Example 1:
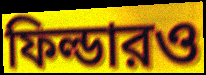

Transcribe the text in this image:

ফিল্ডারও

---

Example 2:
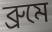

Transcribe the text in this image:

ব্রুমে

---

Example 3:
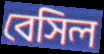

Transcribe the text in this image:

বেসিল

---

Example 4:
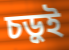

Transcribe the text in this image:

চড়ুই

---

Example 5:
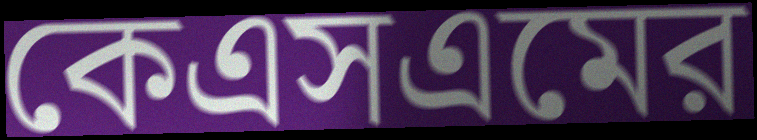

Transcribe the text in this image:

কেএসএমের